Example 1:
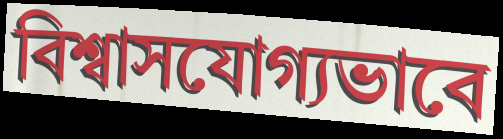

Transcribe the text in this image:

বিশ্বাসযোগ্যভাবে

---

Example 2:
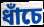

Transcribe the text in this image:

ধাঁচে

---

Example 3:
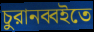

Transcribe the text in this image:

চুরানব্বইতে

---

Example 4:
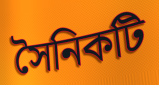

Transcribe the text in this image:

সৈনিকটি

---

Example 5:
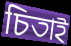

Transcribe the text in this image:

চিতাই